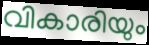
വികാരിയും